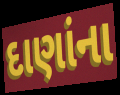
દાણાંના